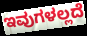
ಇವುಗಳಲ್ಲದೆ